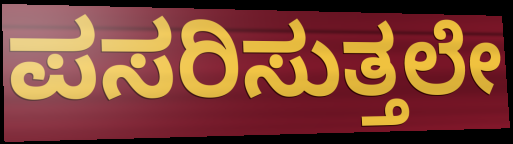
ಪಸರಿಸುತ್ತಲೇ